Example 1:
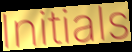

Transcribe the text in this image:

Initials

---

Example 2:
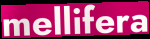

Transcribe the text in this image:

mellifera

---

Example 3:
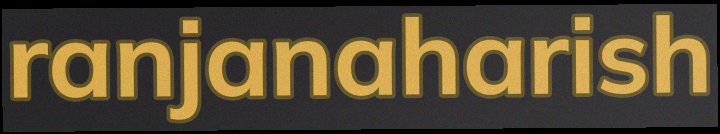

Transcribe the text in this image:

ranjanaharish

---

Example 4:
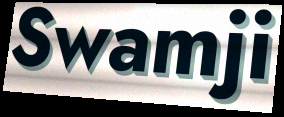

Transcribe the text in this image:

Swamji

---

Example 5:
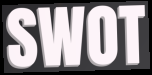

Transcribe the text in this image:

SWOT